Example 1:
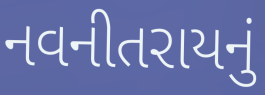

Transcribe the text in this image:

નવનીતરાયનું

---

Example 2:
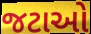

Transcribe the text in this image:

જટાઓ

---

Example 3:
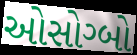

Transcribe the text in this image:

ઓસોગ્બો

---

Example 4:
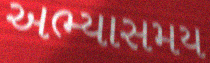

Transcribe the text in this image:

અભ્યાસમય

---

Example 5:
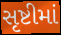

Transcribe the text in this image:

સૃષ્ટીમાં